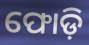
ଫୋଡ଼ି